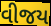
વીજય